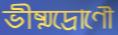
ভীষ্মদ্রোণৌ